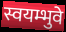
स्वयम्भुवे